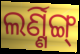
ଲର୍ଣ୍ଣିଙ୍ଗ୍